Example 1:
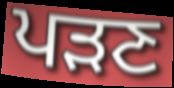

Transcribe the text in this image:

ਪੜਣ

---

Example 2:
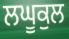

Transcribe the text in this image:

ਲਘੂਕੁਲ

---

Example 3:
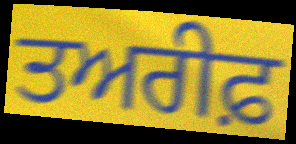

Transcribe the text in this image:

ਤਅਰੀਫ਼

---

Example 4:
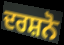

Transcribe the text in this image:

ਦਰਸ਼ਨੋ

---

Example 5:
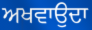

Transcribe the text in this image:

ਅਖਵਾਉਦਾ